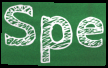
Spe